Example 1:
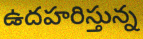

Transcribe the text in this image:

ఉదహరిస్తున్న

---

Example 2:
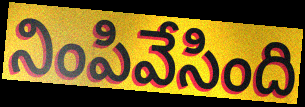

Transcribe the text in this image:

నింపివేసింది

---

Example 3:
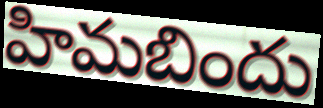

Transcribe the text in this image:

హిమబిందు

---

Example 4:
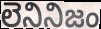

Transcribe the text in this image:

లెనినిజం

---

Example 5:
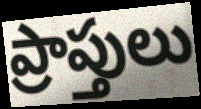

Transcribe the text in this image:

ప్రాప్తులు